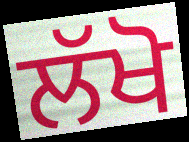
ਲੱਖੋ